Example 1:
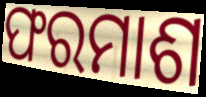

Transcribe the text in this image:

ଫରମାଶ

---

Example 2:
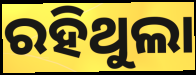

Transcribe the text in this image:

ରହିଥୁଲା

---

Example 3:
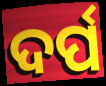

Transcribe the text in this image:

ଦର୍ପ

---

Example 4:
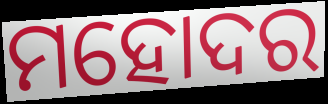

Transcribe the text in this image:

ମହୋଦର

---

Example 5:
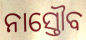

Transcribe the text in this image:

ନାସ୍ତୌବ